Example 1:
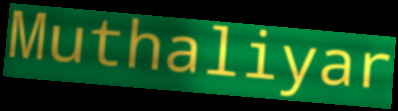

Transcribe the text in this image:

Muthaliyar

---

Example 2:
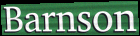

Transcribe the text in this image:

Barnson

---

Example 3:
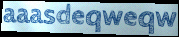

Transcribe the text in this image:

aaasdeqweqw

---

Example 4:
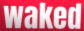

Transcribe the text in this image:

waked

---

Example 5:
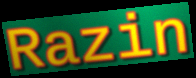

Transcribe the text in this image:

Razin